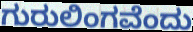
ಗುರುಲಿಂಗವೆಂದು